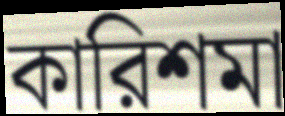
কারিশমা